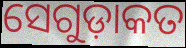
ସେଗୁଡ଼ାକତ